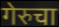
गेरुचा